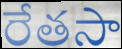
రేతసా